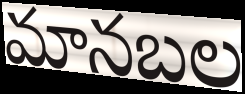
మానబల